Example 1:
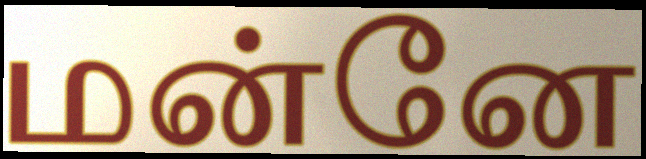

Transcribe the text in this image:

மன்னே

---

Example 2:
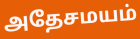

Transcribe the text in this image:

அதேசமயம்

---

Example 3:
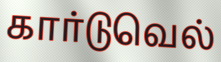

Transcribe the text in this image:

கார்டுவெல்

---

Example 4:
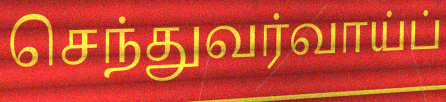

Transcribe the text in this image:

செந்துவர்வாய்ப்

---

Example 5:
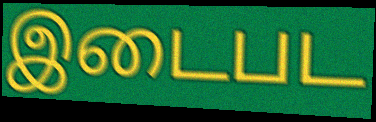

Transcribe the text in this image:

இடைபட